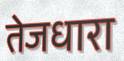
तेजधारा